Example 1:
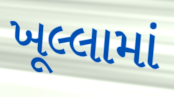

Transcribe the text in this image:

ખૂલ્લામાં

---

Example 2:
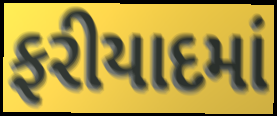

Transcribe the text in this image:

ફરીયાદમાં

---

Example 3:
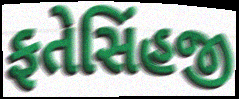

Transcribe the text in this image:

ફતેસિંહજી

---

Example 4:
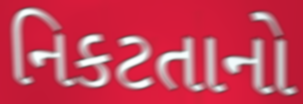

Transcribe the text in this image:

નિકટતાનો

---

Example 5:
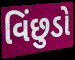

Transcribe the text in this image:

વિંછુડો